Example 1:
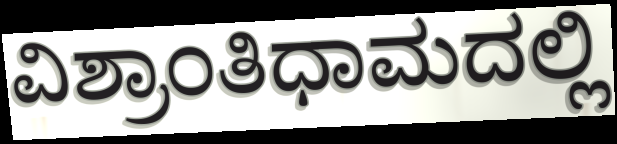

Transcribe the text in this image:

ವಿಶ್ರಾಂತಿಧಾಮದಲ್ಲಿ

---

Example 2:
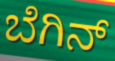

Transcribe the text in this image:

ಬೆಗಿನ್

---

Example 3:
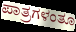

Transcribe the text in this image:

ಪಾತ್ರಗಳಂತೂ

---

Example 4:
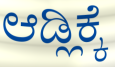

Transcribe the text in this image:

ಆಡ್ಲಿಕ್ಕೆ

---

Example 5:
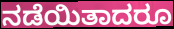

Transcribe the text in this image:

ನಡೆಯಿತಾದರೂ